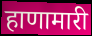
हाणामारी